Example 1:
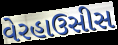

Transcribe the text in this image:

વેરહાઉસીસ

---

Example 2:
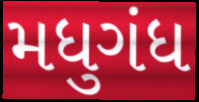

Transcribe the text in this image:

મધુગંધ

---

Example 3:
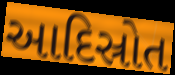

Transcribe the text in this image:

આદિસ્રોત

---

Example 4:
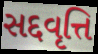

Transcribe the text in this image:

સદ્દવૃત્તિ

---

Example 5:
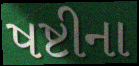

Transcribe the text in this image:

ષષ્ટીના